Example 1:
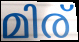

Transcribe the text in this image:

മിര്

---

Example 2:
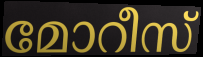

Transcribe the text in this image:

മോറീസ്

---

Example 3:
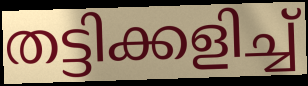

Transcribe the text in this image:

തട്ടിക്കളിച്ച്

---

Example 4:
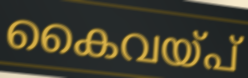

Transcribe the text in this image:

കൈവയ്പ്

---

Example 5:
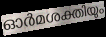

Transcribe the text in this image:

ഓർമശക്തിയും